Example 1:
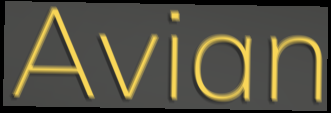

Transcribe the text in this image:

Avian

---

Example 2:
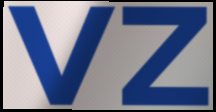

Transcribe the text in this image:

vz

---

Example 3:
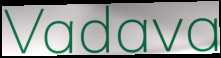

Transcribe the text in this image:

Vadava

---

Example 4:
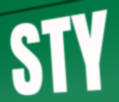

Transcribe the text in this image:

STY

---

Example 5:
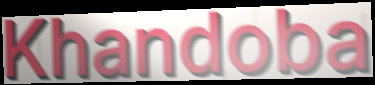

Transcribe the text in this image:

Khandoba